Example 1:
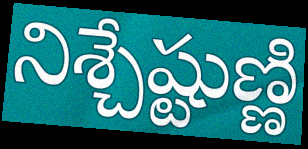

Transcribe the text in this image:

నిశ్చేష్టుణ్ణి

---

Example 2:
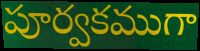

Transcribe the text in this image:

పూర్వకముగా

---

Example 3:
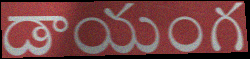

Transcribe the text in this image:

డాయంగ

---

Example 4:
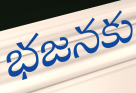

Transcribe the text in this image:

భజనకు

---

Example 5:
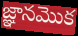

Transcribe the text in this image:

జ్ఞానమొక